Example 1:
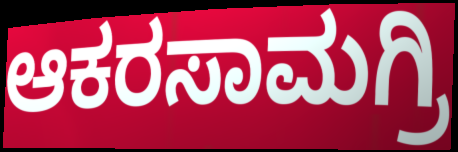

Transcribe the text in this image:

ಆಕರಸಾಮಗ್ರಿ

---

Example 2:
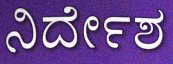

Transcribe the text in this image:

ನಿರ್ದೇಶ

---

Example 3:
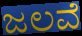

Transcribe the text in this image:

ಜಲವೆ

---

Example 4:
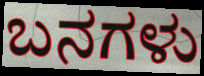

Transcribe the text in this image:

ಬನಗಳು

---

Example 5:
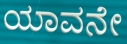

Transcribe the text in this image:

ಯಾವನೇ